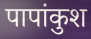
पापांकुश